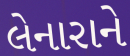
લેનારાને